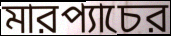
মারপ্যাচের